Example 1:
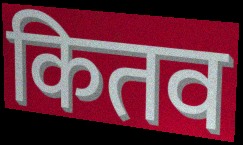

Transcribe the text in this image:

कितव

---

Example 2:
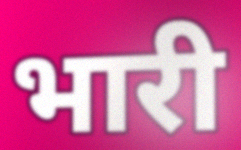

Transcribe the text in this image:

भारी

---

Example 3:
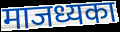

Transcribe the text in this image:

माजध्यका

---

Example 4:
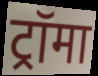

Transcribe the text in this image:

ट्रॉमा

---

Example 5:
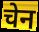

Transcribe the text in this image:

चेन